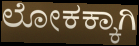
ಲೋಕಕ್ಕಾಗಿ